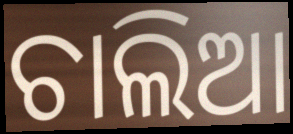
ଚାଲିଆ